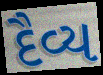
દૈવ્ય